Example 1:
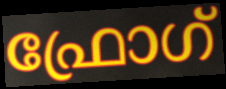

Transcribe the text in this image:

ഫ്രോഗ്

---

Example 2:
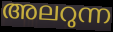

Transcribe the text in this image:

അലറുന്ന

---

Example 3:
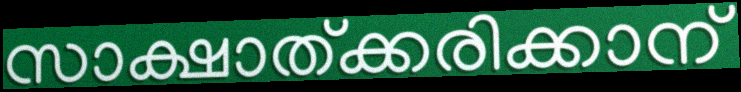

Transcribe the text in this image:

സാക്ഷാത്ക്കരിക്കാന്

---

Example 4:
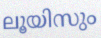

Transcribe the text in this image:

ലൂയിസും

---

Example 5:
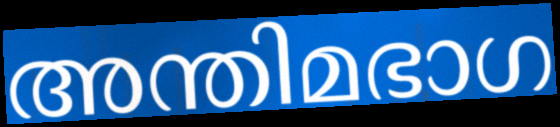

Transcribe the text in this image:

അന്തിമഭാഗ